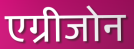
एग्रीजोन